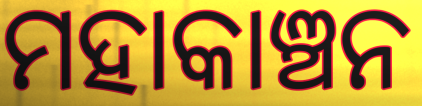
ମହାକାଞ୍ଚନ